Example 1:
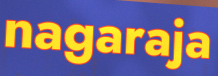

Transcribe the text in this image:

nagaraja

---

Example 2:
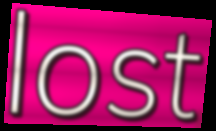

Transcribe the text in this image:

lost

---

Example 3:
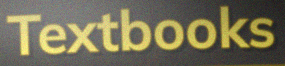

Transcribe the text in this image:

Textbooks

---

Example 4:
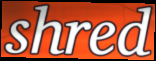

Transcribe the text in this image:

shred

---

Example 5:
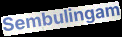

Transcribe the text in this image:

Sembulingam